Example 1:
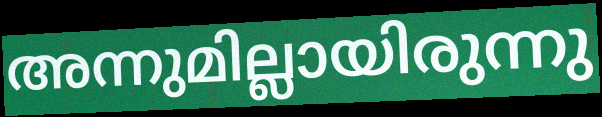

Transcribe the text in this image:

അന്നുമില്ലായിരുന്നു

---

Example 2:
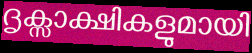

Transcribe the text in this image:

ദൃക്സാക്ഷികളുമായി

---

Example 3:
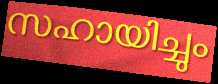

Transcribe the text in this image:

സഹായിച്ചും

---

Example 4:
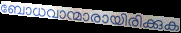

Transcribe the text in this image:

ബോധവാന്മാരായിരിക്കുക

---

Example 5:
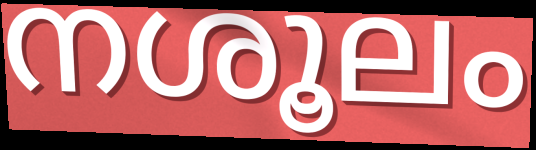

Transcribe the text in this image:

നശൂലം